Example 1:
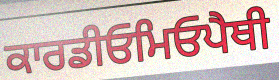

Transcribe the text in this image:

ਕਾਰਡੀਓਮਿਓਪੈਥੀ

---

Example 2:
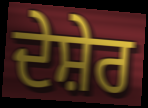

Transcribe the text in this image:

ਦੇਸ਼ੇਰ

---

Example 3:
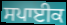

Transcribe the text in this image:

ਸਪਾਈਕ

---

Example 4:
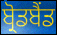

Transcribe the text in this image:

ਬ੍ਰੋਡਬੈਂਡ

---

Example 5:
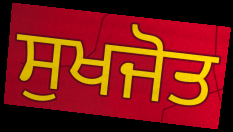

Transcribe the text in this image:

ਸੁਖਜੋਤ